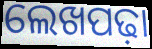
ଲେଖପଢ଼ା